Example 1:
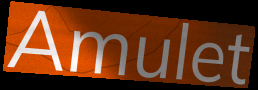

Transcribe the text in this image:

Amulet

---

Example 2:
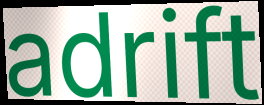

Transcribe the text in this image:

adrift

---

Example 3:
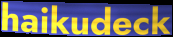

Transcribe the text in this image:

haikudeck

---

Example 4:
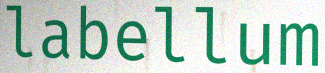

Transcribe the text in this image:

labellum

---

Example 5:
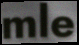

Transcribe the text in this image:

mle